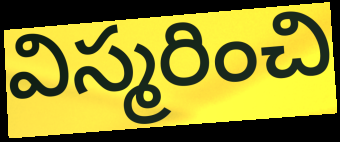
విస్మరించి